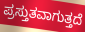
ಪ್ರಸ್ತುತವಾಗುತ್ತದೆ